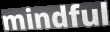
mindful